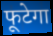
फूटेगा